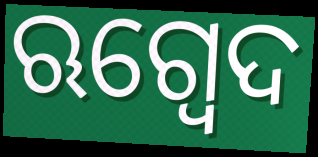
ଋଗ୍ବେଦ